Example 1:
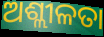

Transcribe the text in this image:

ଅଶ୍ଲୀଳତା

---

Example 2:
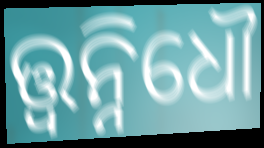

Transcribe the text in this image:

ତ୍ତ୍ଵନ୍ନିଧୌ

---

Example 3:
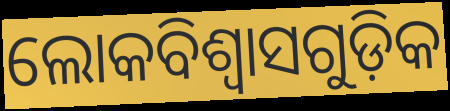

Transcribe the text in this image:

ଲୋକବିଶ୍ୱାସଗୁଡ଼ିକ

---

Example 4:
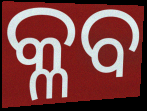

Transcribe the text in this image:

କ୍ଳବ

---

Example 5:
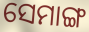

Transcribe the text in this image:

ସେମାଙ୍ଗ